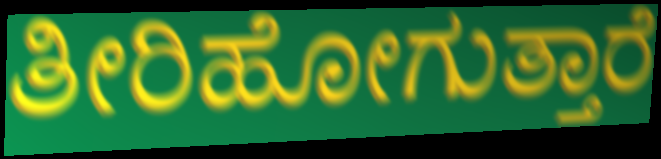
ತೀರಿಹೋಗುತ್ತಾರೆ